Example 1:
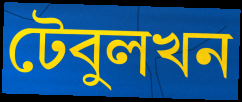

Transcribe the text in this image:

টেবুলখন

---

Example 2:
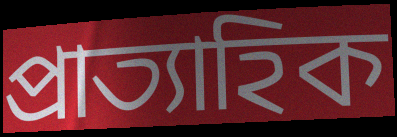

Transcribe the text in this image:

প্ৰাত্যাহিক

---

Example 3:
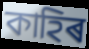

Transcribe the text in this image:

কাহিৰ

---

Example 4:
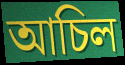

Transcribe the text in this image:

আচিল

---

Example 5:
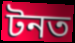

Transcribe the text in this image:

টনত